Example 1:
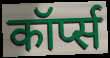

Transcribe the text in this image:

कॉर्प्स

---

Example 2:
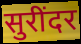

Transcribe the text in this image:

सुरींदर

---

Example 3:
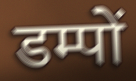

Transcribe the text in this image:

डम्पों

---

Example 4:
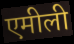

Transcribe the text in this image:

एमीली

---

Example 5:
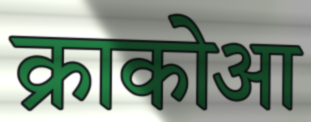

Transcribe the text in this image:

क्राकोआ